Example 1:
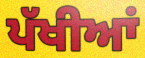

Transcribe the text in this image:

ਪੱਖੀਆਂ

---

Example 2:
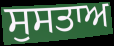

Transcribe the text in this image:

ਸੁਸਤਾਅ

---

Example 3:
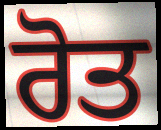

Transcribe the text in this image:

ਰੋਤ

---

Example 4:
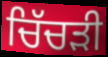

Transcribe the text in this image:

ਚਿੱਚੜੀ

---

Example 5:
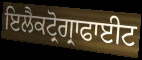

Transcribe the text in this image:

ਇਲੈਕਟ੍ਰੋਗ੍ਰਾਫਾਈਟ